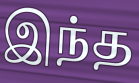
இந்த